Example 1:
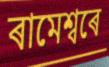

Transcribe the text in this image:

ৰামেশ্বৰে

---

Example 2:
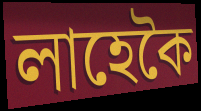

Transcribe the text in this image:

লাহেকৈ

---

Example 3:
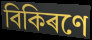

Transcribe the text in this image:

বিকিৰণে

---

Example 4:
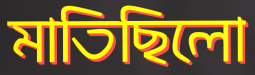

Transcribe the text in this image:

মাতিছিলো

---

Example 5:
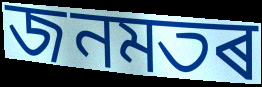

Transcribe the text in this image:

জনমতৰ